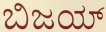
ಬಿಜಯ್